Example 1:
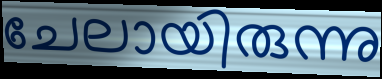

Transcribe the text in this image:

ചേലായിരുന്നു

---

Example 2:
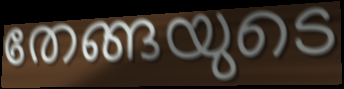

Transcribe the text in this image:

തേങ്ങയുടെ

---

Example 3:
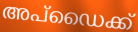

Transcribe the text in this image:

അപ്ഡൈക്ക്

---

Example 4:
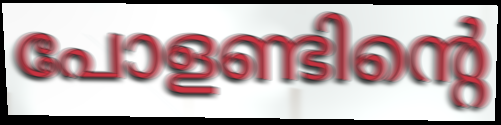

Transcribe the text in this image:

പോളണ്ടിന്റെ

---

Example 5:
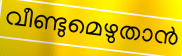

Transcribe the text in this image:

വീണ്ടുമെഴുതാൻ